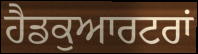
ਹੈਡਕੁਆਰਟਰਾਂ